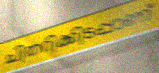
ചിതറിക്കിടപ്പാണ്